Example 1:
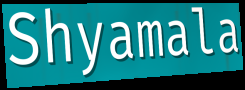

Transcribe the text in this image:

Shyamala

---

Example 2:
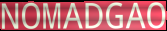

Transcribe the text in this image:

NOMADGAO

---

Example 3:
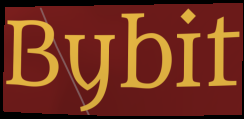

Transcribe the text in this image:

Bybit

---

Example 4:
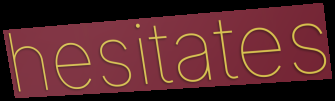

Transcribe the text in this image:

hesitates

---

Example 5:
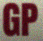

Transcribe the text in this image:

GP